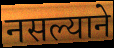
नसल्याने